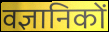
वज्ञानिकों